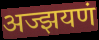
अज्झयणं